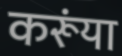
करूंया